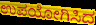
ಉಪಯೋಗಿಸಿದ